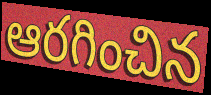
ఆరగించిన